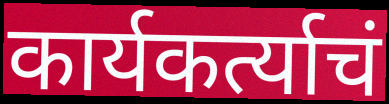
कार्यकर्त्याचं